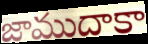
జాముదాకా